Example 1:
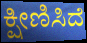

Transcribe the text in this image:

ಕ್ಷೀಣಿಸಿದೆ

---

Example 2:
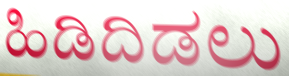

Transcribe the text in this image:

ಹಿಡಿದಿಡಲು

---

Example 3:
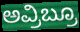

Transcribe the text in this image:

ಅವ್ರಿಬ್ರೂ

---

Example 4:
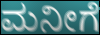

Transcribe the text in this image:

ಮನೀಗೆ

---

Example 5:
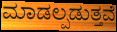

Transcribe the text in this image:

ಮಾಡಲ್ಪಡುತ್ತವೆ